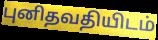
புனிதவதியிடம்